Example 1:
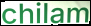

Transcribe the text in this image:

chilam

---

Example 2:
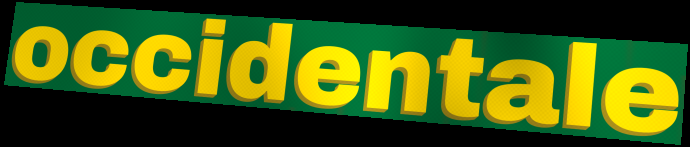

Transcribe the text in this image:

occidentale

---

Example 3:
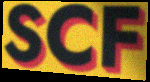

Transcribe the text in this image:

SCF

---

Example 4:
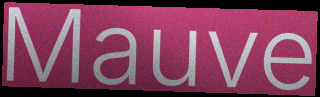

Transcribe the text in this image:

Mauve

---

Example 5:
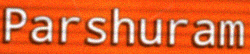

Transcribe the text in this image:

Parshuram